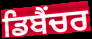
ਡਿਬੈਂਚਰ